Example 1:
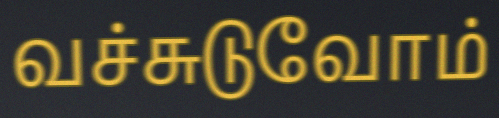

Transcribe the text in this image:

வச்சுடுவோம்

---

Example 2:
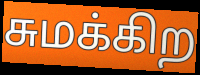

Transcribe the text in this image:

சுமக்கிற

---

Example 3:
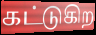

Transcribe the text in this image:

கட்டுகிற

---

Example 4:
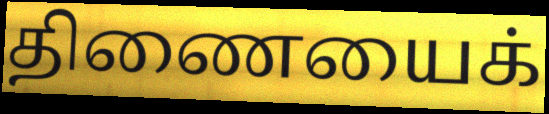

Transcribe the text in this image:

திணையைக்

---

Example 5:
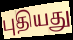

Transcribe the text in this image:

புதியது